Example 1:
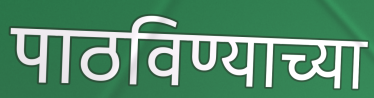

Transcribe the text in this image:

पाठविण्याच्या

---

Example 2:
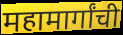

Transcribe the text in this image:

महामार्गांची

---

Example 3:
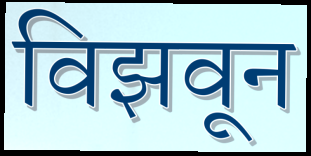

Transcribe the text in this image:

विझवून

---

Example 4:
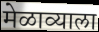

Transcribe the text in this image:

मेळाव्याला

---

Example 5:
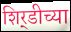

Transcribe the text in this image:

शिर्डीच्या